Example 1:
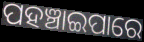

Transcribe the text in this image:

ପହଞ୍ଚାଇପାରେ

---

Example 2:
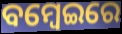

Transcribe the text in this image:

ବମ୍ବେଇରେ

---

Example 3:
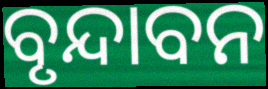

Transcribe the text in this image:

ବୃନ୍ଦାବନ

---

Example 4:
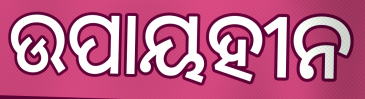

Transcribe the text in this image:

ଉପାୟହୀନ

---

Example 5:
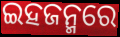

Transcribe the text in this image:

ଇହଜନ୍ମରେ